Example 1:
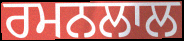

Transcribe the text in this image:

ਰਮਨਲਾਲ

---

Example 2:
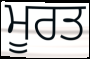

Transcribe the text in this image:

ਮੂਰਤ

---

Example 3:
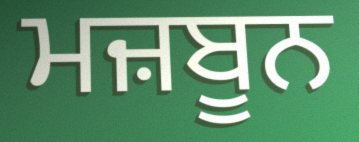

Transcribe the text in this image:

ਮਜ਼ਬੂਨ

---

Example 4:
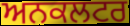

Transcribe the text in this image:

ਅਨਕਲਟਰ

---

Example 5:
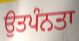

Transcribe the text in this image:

ਉਤਪੰਨਤਾ